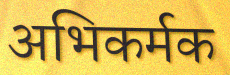
अभिकर्मक